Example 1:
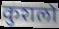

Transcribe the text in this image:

कुशलो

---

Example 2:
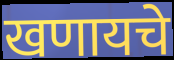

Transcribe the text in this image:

खणायचे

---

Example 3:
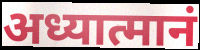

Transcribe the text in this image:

अध्यात्मानं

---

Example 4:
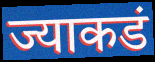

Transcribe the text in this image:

ज्याकडं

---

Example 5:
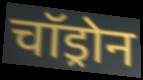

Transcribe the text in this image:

चॉड्रोन